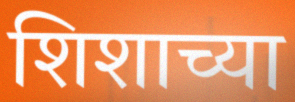
शिशाच्या